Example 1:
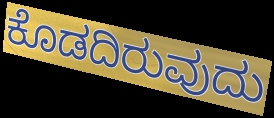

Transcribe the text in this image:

ಕೊಡದಿರುವುದು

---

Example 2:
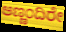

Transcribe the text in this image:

ಅಣ್ಣಂದಿರೇ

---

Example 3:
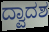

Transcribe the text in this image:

ದ್ವಾದಶ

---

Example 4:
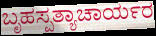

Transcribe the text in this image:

ಬೃಹಸ್ಪತ್ಯಾಚಾರ್ಯರ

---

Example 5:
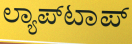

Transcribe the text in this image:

ಲ್ಯಾಪ್‍ಟಾಪ್